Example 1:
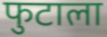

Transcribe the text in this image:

फुटाला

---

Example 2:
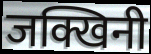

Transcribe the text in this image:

जक्खिनी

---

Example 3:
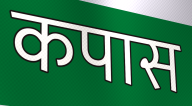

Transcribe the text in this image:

कपास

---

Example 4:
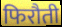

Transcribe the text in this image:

फिरौती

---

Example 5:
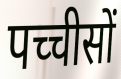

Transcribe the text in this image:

पच्चीसों